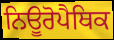
ਨਿਊਰੋਪੈਥਿਕ